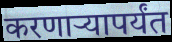
करणाऱ्यापर्यंत